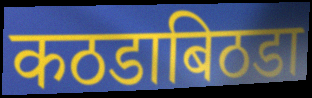
कठडाबिठडा